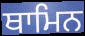
ਥਾਮਿਨ